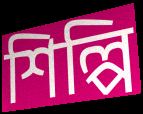
শিল্পি